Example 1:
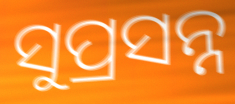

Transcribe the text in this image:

ସୁପ୍ରସନ୍ନ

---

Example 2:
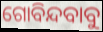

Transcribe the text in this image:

ଗୋବିନ୍ଦବାବୁ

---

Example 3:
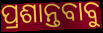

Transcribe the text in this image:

ପ୍ରଶାନ୍ତବାବୁ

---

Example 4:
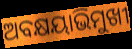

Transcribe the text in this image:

ଅବକ୍ଷୟାଭିମୁଖୀ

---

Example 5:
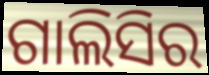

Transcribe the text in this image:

ଗାଲିସିର